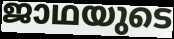
ജാഥയുടെ